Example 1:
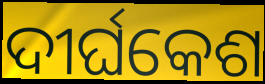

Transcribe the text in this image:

ଦୀର୍ଘକେଶ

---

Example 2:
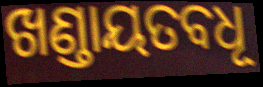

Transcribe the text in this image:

ଖଣ୍ଡାୟତବଧୂ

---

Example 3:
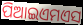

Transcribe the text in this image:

ପିଆଇଏମଏସ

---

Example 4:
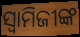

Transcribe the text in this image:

ସ୍ବାମିଜୀଙ୍କ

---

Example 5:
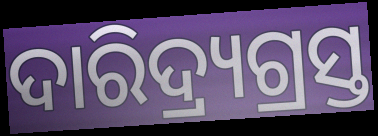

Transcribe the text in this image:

ଦାରିଦ୍ର୍ୟଗ୍ରସ୍ତ